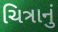
ચિત્રાનું